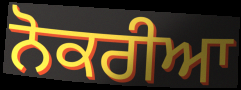
ਨੋਕਰੀਆ